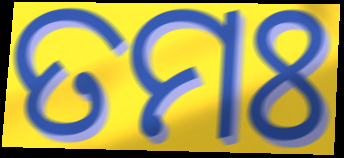
ତମଃ